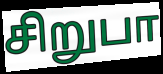
சிறுபா